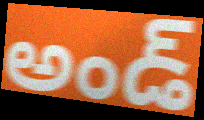
అండ్